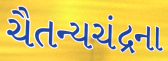
ચૈતન્યચંદ્રના